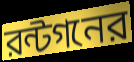
রন্টগনের